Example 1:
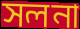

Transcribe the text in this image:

সলনা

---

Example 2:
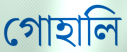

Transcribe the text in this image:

গোহালি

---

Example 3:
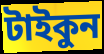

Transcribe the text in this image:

টাইকুন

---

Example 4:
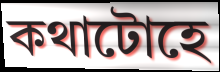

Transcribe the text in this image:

কথাটোহে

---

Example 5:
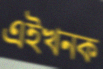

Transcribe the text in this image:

এইখনক